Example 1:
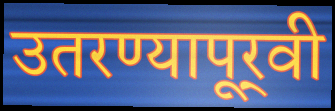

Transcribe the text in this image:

उतरण्यापूर्वी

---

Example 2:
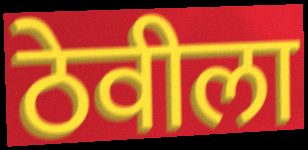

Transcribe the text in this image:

ठेवीला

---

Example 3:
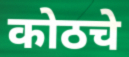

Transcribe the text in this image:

कोठचे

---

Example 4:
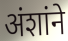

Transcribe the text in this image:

अंशांने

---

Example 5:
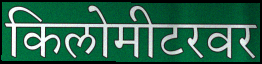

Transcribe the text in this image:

किलोमीटरवर